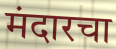
मंदारचा